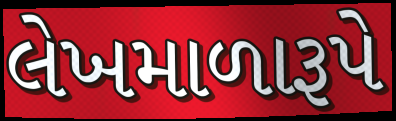
લેખમાળારૂપે